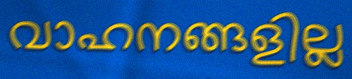
വാഹനങ്ങളില്ല